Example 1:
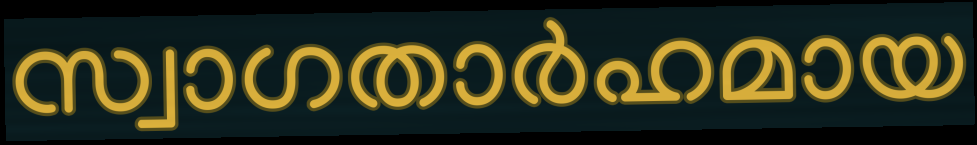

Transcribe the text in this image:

സ്വാഗതാർഹമായ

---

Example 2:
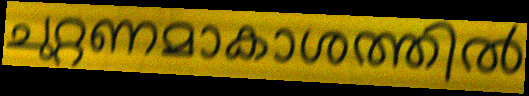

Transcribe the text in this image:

ചുറ്റണമാകാശത്തിൽ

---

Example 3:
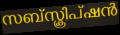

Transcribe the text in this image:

സബ്സ്ക്രിപ്ഷൻ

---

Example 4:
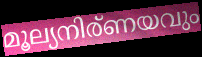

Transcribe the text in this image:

മൂല്യനിര്ണയവും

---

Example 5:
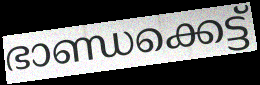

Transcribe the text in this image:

ഭാണ്ഡക്കെട്ട്